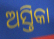
ଅସ୍ତିକା